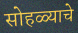
सोहळ्याचे